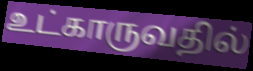
உட்காருவதில்